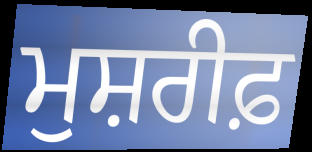
ਮੁਸ਼ਰੀਫ਼